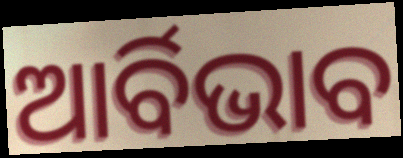
ଆର୍ବିଭାବ